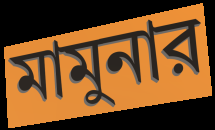
মামুনার